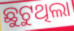
ଛୁଟୁଥିଲା